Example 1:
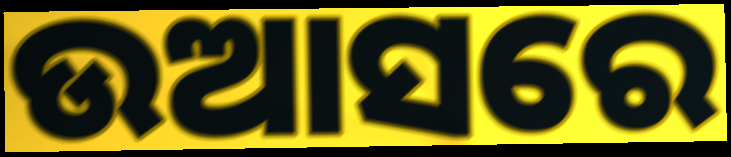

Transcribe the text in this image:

ଉଆସରେ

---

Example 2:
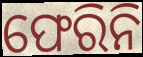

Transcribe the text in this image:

ଫେରିନି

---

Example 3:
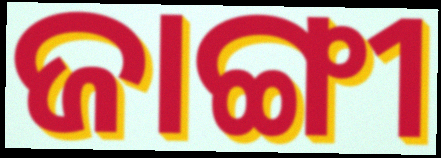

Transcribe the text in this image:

ଜାଙ୍ଗୀ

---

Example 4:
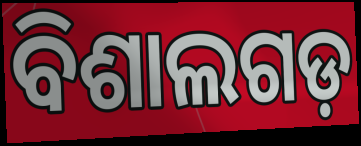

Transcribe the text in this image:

ବିଶାଲଗଡ଼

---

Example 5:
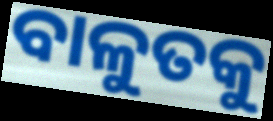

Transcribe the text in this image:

ବାଳୁତକୁ